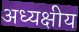
अध्यक्षीय